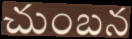
చుంబన